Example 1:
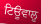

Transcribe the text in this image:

ਟਿਊਵਾਲੂ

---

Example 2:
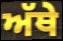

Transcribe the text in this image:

ਅੱਥੇ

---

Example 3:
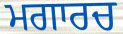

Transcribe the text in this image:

ਮਗਾਰਚ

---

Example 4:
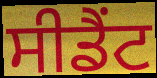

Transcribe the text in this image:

ਸੀਡੈਂਟ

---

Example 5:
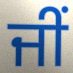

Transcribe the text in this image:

ਜੀਂ